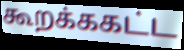
கூறக்ககட்ட